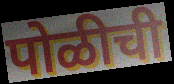
पोळीची